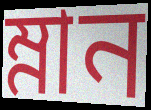
ম্নান